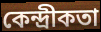
কেন্দ্রীকতা